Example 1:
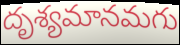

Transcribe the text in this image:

దృశ్యమానమగు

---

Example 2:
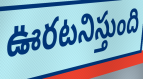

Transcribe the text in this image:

ఊరటనిస్తుంది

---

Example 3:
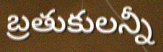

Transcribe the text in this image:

బ్రతుకులన్నీ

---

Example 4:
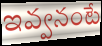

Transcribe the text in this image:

ఇవ్వనంటే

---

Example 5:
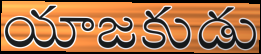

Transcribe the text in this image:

యాజకుడు